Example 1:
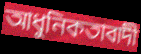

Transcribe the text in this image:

আধুনিকতাবাদী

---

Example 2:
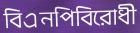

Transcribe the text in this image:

বিএনপিবিরোধী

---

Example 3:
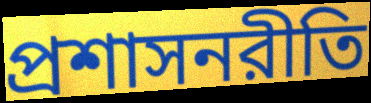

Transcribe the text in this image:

প্রশাসনরীতি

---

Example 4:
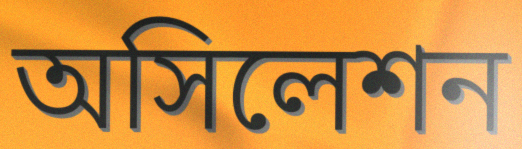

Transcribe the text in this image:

অসিলেশন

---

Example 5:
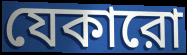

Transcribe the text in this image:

যেকারো